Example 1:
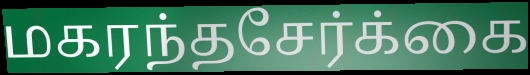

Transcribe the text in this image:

மகரந்தசேர்க்கை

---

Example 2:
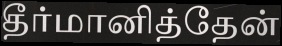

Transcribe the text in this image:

தீர்மானித்தேன்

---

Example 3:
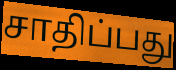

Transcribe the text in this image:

சாதிப்பது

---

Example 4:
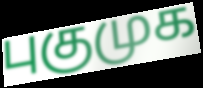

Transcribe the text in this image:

புகுமுக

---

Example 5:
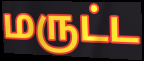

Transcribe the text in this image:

மருட்ட